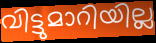
വിട്ടുമാറിയില്ല